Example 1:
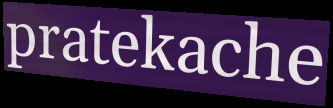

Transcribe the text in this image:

pratekache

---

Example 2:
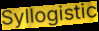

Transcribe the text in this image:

Syllogistic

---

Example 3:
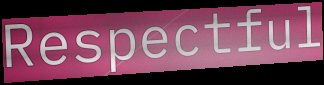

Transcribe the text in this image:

Respectful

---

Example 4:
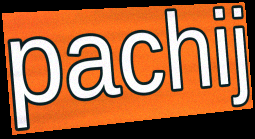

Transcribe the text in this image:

pachij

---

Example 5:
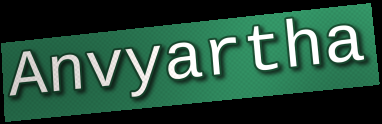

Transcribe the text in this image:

Anvyartha